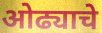
ओढ्याचे